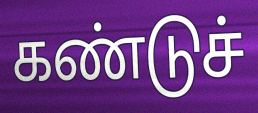
கண்டுச்